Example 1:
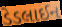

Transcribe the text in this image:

ડેડલાઈન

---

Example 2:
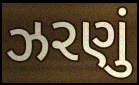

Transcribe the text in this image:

ઝરણું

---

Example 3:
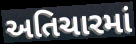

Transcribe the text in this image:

અતિચારમાં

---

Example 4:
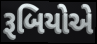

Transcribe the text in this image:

રૂબિયોએ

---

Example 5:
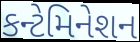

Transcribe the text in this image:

કન્ટેમિનેશન